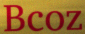
Bcoz